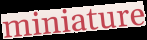
miniature